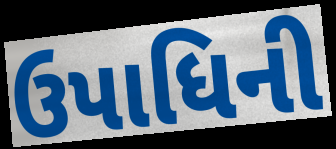
ઉપાધિની